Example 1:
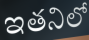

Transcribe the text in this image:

ఇతనిలో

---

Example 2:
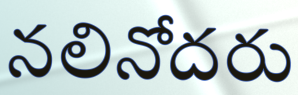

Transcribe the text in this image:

నలినోదరు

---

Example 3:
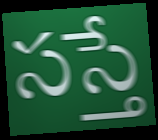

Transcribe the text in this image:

సస్తే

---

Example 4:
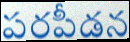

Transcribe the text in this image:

పరపీడన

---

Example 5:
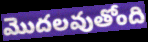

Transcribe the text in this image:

మొదలవుతోంది